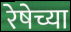
रेषेच्या